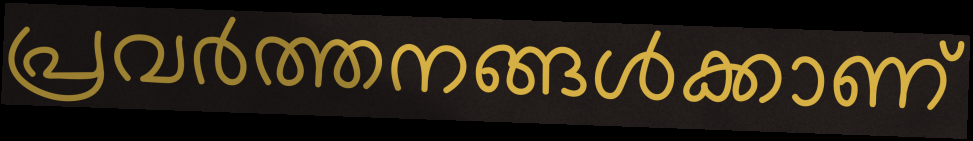
പ്രവർത്തനങ്ങൾക്കാണ്